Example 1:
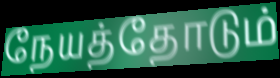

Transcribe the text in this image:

நேயத்தோடும்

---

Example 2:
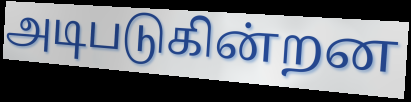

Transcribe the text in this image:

அடிபடுகின்றன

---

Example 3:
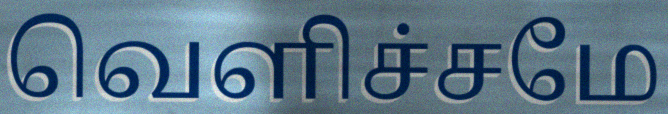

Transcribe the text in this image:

வெளிச்சமே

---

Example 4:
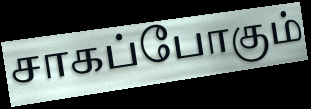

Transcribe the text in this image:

சாகப்போகும்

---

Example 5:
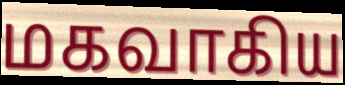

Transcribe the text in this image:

மகவாகிய